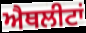
ਐਥਲੀਟਾਂ